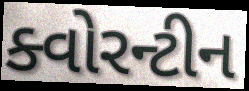
ક્વોરન્ટીન